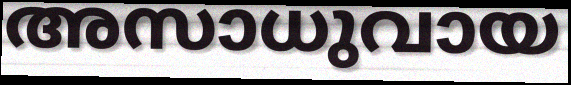
അസാധുവായ